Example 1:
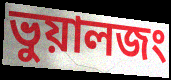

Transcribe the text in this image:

ভুয়ালজং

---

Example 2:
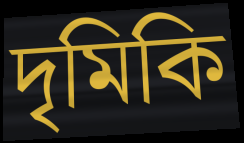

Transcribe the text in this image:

দৃমিকি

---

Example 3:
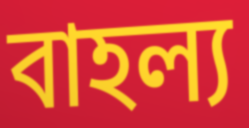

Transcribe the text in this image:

বাহল্য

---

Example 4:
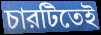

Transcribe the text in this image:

চারটিতেই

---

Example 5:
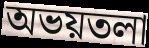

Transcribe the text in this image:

অভয়তলা